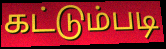
கட்டும்படி